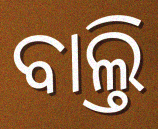
ବାଲ୍ତି